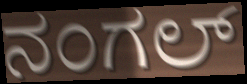
ನಂಗಲ್